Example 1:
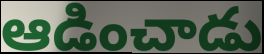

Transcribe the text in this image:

ఆడించాడు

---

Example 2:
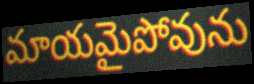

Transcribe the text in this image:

మాయమైపోవును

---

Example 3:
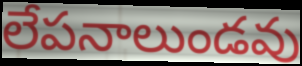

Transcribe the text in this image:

లేపనాలుండవు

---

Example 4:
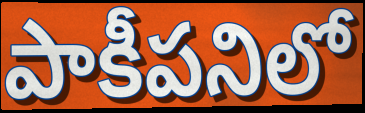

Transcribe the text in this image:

పాకీపనిలో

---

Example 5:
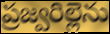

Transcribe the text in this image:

ప్రజ్వరిల్లెను